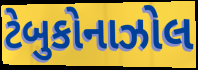
ટેબુકોનાઝોલ